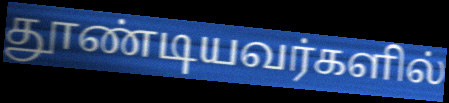
தூண்டியவர்களில்